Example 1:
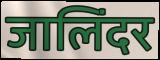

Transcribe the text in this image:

जालिंदर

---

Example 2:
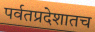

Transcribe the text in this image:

पर्वतप्रदेशातच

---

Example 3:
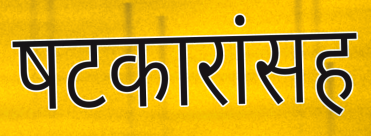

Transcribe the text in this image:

षटकारांसह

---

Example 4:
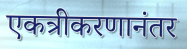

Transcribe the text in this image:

एकत्रीकरणानंतर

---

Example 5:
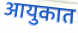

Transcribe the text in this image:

आयुकात